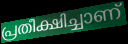
പ്രതീക്ഷിച്ചാണ്